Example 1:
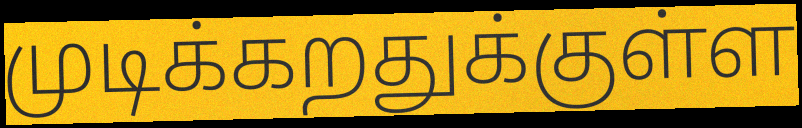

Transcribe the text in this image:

முடிக்கறதுக்குள்ள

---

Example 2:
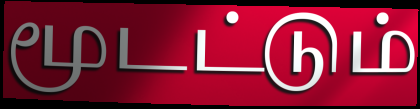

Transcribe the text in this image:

மூடட்டும்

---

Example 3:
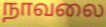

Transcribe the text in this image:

நாவலை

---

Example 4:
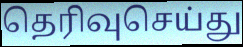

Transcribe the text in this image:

தெரிவுசெய்து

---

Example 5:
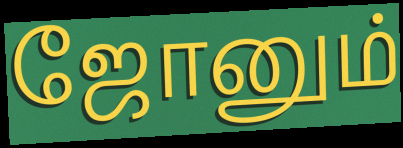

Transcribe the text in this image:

ஜோனும்